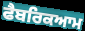
ਫੈਬਰਿਕਆਮ